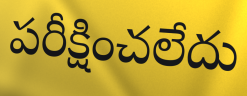
పరీక్షించలేదు